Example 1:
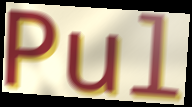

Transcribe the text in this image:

Pul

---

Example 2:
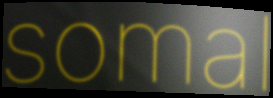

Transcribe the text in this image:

somal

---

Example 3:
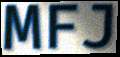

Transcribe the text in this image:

MFJ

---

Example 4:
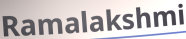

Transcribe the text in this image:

Ramalakshmi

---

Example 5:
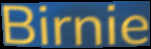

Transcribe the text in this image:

Birnie